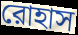
রোহাস